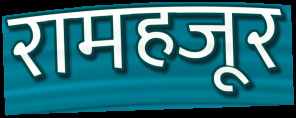
रामहजूर